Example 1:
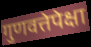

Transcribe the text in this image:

गुणवत्तेपेक्षा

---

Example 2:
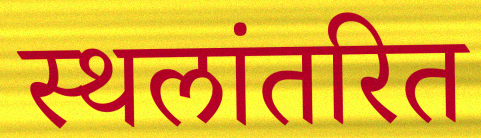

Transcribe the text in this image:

स्थलांतरित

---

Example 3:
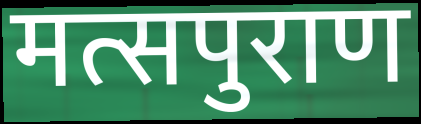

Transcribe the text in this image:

मत्सपुराण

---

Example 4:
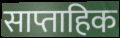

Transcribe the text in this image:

साप्ताहिक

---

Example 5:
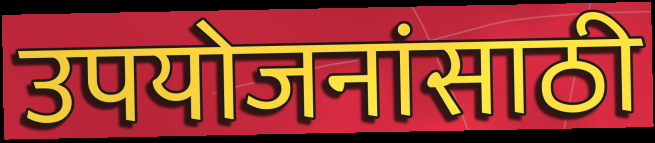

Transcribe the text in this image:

उपयोजनांसाठी